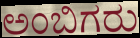
ಅಂಬಿಗರು